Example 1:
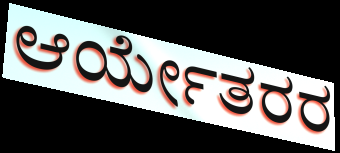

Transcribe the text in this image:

ಆರ್ಯೇತರರ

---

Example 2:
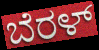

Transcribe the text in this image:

ಬೆರಳ್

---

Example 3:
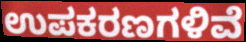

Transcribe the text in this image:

ಉಪಕರಣಗಳಿವೆ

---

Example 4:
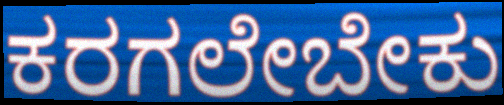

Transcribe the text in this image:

ಕರಗಲೇಬೇಕು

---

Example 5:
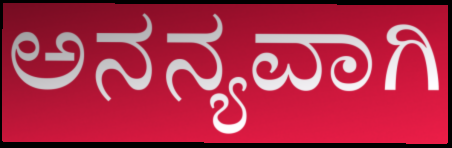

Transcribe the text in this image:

ಅನನ್ಯವಾಗಿ